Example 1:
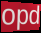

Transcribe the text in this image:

opd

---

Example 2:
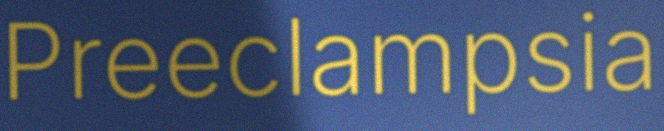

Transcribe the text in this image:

Preeclampsia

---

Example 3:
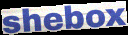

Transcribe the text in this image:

shebox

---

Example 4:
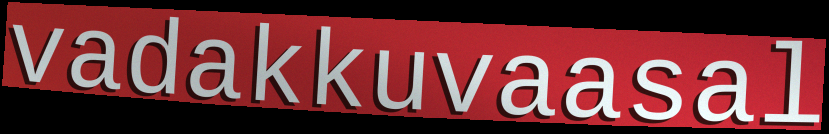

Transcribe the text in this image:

vadakkuvaasal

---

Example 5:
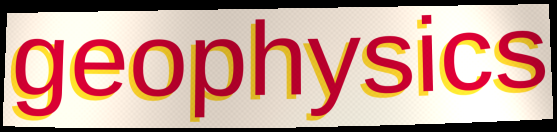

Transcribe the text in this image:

geophysics